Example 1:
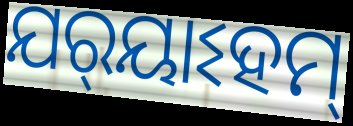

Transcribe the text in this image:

ଯର୍‌ୟାଽହମ୍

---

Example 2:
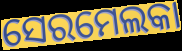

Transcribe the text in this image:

ସେରମେଲକା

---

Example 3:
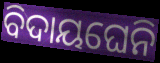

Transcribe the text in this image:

ବିଦାୟଘେନି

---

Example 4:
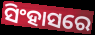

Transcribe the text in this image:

ସିଂହାସରେ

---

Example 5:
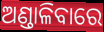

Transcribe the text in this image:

ଅଣ୍ଡାଳିବାରେ